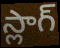
స్లాగ్